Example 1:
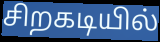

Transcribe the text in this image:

சிறகடியில்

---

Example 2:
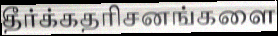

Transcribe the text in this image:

தீர்க்கதரிசனங்களை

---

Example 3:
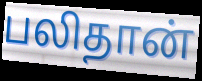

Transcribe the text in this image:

பலிதான்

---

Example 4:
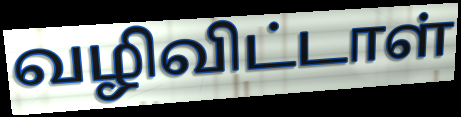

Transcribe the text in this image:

வழிவிட்டாள்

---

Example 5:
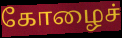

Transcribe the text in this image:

கோழைச்